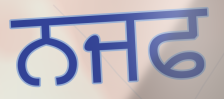
ਨਜਫ